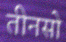
तीनसो